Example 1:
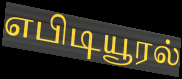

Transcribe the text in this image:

எபிடியூரல்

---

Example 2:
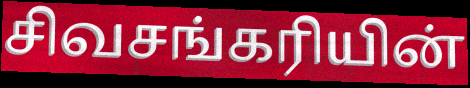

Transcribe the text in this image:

சிவசங்கரியின்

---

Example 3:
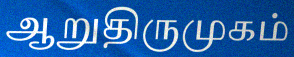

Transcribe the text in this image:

ஆறுதிருமுகம்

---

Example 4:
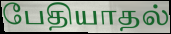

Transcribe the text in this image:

பேதியாதல்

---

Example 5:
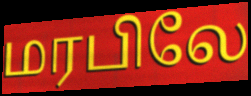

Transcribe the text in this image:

மரபிலே